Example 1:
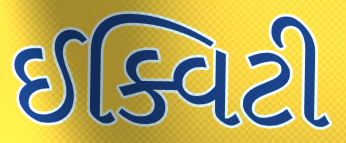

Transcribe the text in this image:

ઈક્વિટી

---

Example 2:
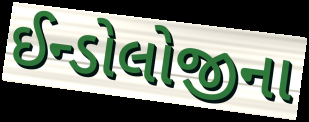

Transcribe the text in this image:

ઈન્ડોલોજીના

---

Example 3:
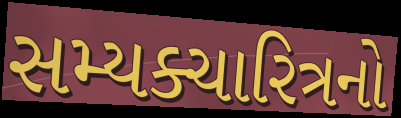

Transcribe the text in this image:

સમ્યક્ચારિત્રનો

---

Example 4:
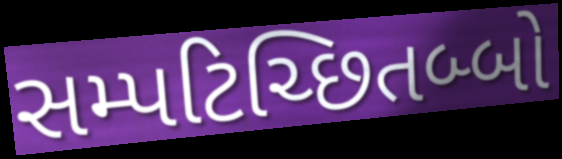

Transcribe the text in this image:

સમ્પટિચ્છિતબ્બો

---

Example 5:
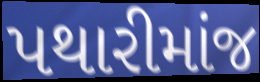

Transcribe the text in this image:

પથારીમાંજ